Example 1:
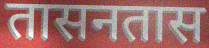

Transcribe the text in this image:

तासनतास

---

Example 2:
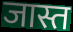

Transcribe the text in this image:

जास्त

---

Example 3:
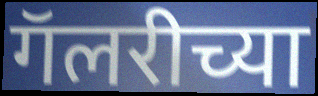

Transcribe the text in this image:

गॅलरीच्या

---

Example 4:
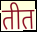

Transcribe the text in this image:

तीत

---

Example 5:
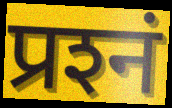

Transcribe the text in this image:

प्रश्‍नं